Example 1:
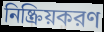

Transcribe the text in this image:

নিষ্ক্রিয়করণ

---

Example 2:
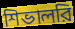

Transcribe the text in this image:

শিভালরি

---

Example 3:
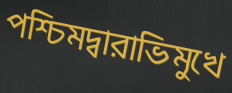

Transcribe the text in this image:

পশ্চিমদ্বারাভিমুখে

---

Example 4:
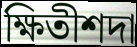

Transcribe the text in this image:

ক্ষিতীশদা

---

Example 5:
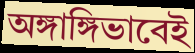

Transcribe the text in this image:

অঙ্গাঙ্গিভাবেই